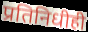
प्रतिनिधीही